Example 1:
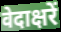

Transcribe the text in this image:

वेदाक्षरें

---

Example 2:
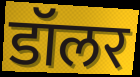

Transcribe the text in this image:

डॉलर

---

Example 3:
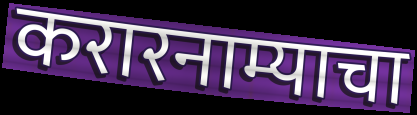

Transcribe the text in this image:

करारनाम्याचा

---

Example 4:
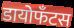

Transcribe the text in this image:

डायोफँटस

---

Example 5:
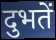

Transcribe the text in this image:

दुभतें